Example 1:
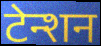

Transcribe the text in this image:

टेन्शन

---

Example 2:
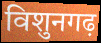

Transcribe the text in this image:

विशुनगढ़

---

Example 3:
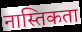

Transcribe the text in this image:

नास्तिकता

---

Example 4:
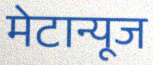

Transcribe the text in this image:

मेटान्यूज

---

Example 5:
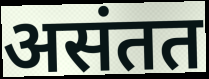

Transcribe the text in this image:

असंतत